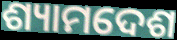
ଶ୍ୟାମଦେଶ